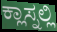
ಕ್ಲಾಸ್ನಲ್ಲಿ